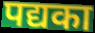
पद्यका